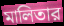
মালিতার